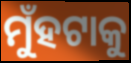
ମୁଁହଟାକୁ